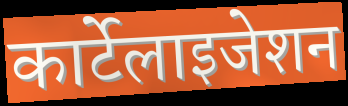
कार्टेलाइजेशन